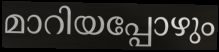
മാറിയപ്പോഴും